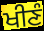
ਖੀਣੰ